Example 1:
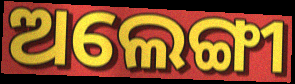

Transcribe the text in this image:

ଅଲେଙ୍ଗୀ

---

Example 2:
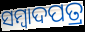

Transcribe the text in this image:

ସମ୍ବାଦପତ୍ର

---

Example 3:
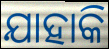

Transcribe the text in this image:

ଯାହାକି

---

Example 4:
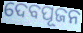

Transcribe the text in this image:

ଦେବପୂଜନ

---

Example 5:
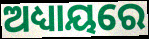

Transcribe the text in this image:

ଅଧ୍ୟାୟରେ